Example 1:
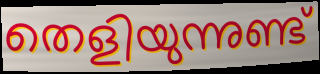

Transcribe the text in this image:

തെളിയുന്നുണ്ട്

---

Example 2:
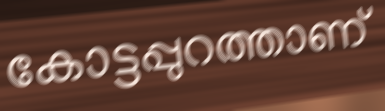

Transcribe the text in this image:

കോട്ടപ്പുറത്താണ്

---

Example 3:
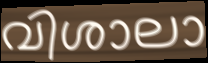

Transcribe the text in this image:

വിശാലാ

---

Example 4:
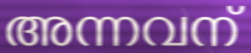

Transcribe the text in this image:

അന്നവന്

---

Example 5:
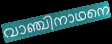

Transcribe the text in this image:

വാഞ്ചിനാഥനെ